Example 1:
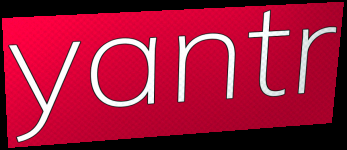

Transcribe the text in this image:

yantr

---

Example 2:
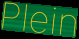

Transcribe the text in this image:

Plein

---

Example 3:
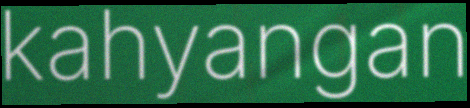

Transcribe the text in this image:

kahyangan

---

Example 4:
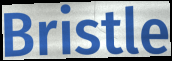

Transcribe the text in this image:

Bristle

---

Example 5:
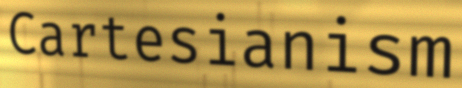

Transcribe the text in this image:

Cartesianism